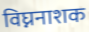
विघ्ननाशक